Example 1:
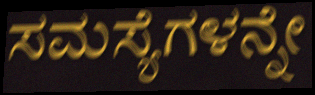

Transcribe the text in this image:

ಸಮಸ್ಯೆಗಳನ್ನೇ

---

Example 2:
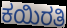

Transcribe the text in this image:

ಕಯಿರತಿ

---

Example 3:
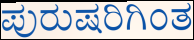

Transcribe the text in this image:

ಪುರುಷರಿಗಿಂತ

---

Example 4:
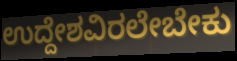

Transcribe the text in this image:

ಉದ್ದೇಶವಿರಲೇಬೇಕು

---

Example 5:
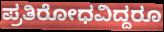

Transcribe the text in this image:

ಪ್ರತಿರೋಧವಿದ್ದರೂ